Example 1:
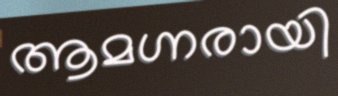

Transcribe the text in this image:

ആമഗ്നരായി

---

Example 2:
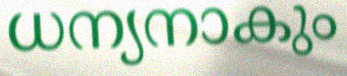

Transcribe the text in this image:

ധന്യനാകും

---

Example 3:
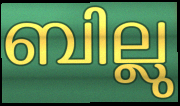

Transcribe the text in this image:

ബില്ലു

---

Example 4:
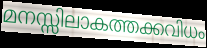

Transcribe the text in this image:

മനസ്സിലാകത്തക്കവിധം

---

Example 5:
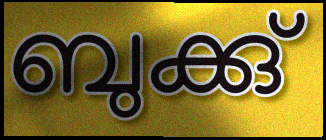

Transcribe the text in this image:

ബുക്കു്